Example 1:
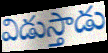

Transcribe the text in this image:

విడుస్తాడు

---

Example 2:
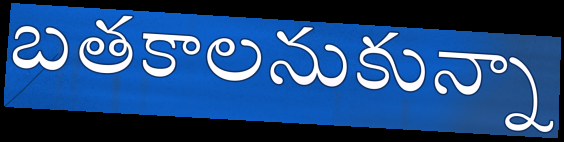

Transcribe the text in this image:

బతకాలనుకున్నా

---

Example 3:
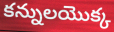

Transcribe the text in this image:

కన్నులయొక్క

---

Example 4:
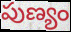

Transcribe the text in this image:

పుణ్యం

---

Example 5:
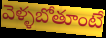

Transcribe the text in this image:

వెళ్ళబోతూంటే